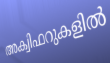
അക്വിഫറുകളിൽ